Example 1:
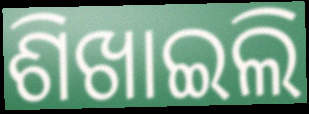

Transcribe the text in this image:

ଶିଖାଇଲି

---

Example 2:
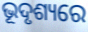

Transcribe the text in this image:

ଭୂଦୃଶ୍ୟରେ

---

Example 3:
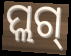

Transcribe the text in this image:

ପ୍ଲଗ୍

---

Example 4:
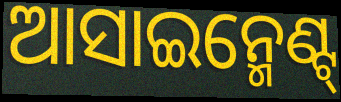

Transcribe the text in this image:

ଆସାଇନ୍ମେଣ୍ଟ୍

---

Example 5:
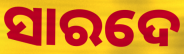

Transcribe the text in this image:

ସାରଦେ